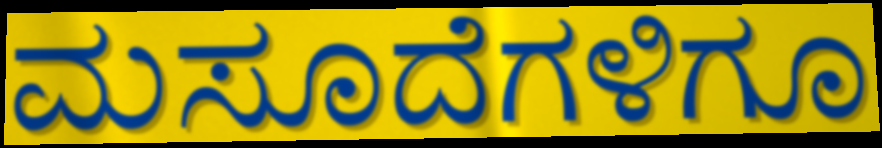
ಮಸೂದೆಗಳಿಗೂ